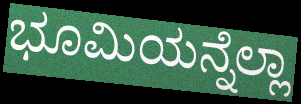
ಭೂಮಿಯನ್ನೆಲ್ಲಾ